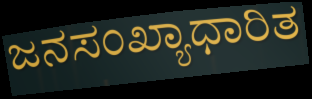
ಜನಸಂಖ್ಯಾಧಾರಿತ